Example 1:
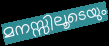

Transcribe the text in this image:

മനസ്സിലൂടെയും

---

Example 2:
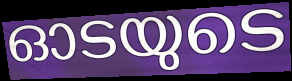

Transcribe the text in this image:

ഓടയുടെ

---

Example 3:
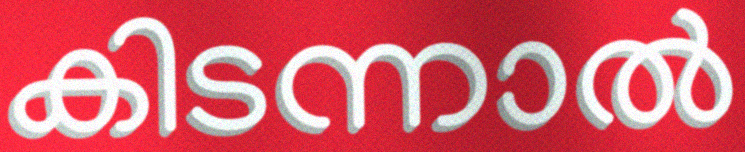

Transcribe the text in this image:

കിടന്നാൽ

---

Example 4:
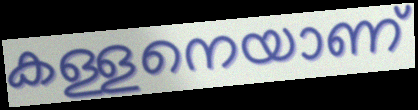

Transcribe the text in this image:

കള്ളനെയാണ്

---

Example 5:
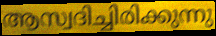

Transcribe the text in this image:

ആസ്വദിച്ചിരിക്കുന്നു